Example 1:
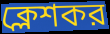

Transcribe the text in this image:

ক্লেশকর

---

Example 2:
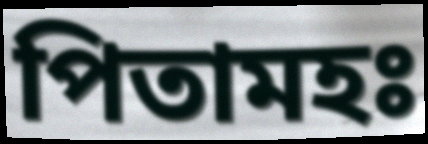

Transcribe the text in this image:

পিতামহঃ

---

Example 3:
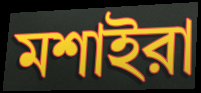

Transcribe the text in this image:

মশাইরা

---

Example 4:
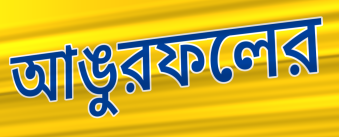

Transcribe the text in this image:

আঙুরফলের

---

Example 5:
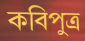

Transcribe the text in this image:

কবিপুত্র